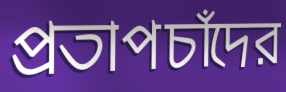
প্রতাপচাঁদের